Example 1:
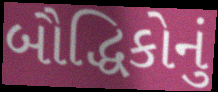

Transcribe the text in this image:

બૌદ્ધિકોનું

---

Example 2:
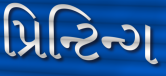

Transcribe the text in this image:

પ્રિન્ટિન્ગ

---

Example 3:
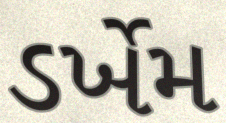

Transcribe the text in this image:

ડર્ખેમ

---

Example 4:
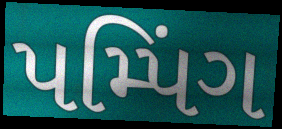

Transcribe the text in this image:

પમ્પિંગ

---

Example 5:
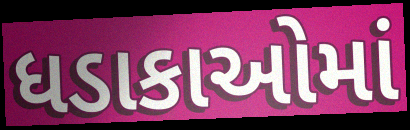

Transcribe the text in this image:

ધડાકાઓમાં